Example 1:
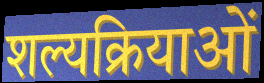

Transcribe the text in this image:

शल्यक्रियाओं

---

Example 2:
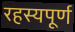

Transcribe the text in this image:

रहस्यपूर्ण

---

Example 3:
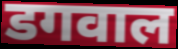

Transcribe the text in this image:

डगवाल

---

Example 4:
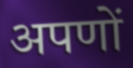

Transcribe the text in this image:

अपणों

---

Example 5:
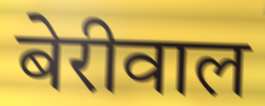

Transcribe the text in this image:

बेरीवाल